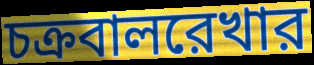
চক্রবালরেখার